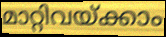
മാറ്റിവയ്ക്കാം